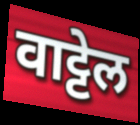
वाट्टेल